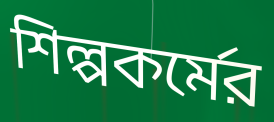
শিল্পকর্মের